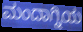
ಮಂದಾಗ್ನಿಯ